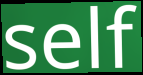
self